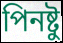
পিনষ্টু